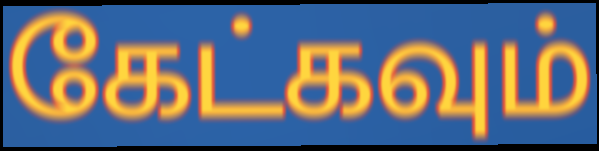
கேட்கவும்